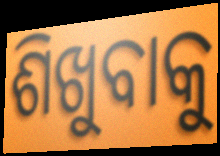
ଶିଖୁବାକୁ